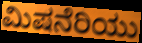
ಮಿಷನೆರಿಯು